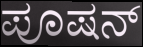
ಪೂಷನ್